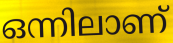
ഒന്നിലാണ്